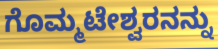
ಗೊಮ್ಮಟೇಶ್ವರನನ್ನು